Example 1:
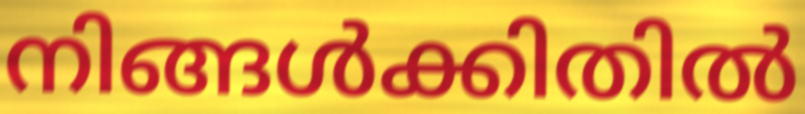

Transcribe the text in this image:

നിങ്ങൾക്കിതിൽ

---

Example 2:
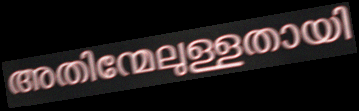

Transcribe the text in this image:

അതിന്മേലുള്ളതായി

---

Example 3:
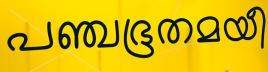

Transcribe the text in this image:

പഞ്ചഭൂതമയീ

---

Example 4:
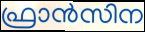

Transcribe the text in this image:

ഫ്രാൻസിന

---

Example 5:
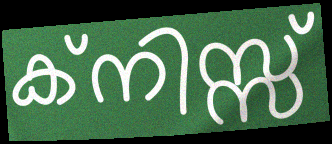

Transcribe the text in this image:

ക്നിസ്സ്